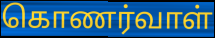
கொணர்வாள்